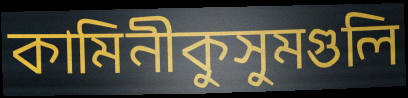
কামিনীকুসুমগুলি